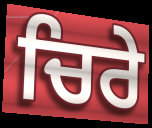
ਚਿਰੇ